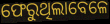
ଫେରୁଥିଲାବେଳେ